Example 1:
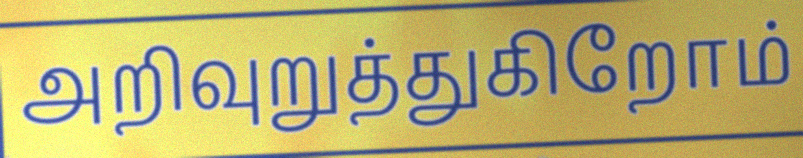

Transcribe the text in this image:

அறிவுறுத்துகிறோம்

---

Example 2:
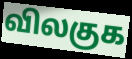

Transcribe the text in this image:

விலகுக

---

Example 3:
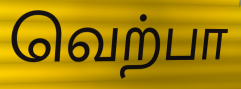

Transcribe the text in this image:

வெற்பா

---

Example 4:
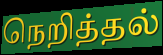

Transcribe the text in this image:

நெறித்தல்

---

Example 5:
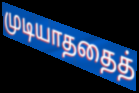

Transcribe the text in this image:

முடியாததைத்